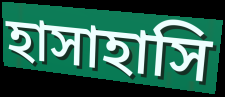
হাসাহাসি